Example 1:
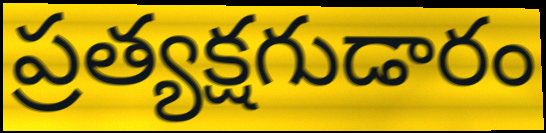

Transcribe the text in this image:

ప్రత్యక్షగుడారం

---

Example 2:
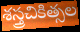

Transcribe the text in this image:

శస్త్రచికిత్సల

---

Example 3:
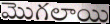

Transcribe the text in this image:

మొగలాయి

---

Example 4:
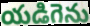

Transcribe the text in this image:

యడిగెను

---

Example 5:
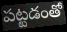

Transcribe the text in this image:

పట్టడంతో